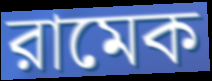
রামেক